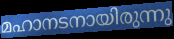
മഹാനടനായിരുന്നു